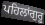
ਪਹਿਲਾਂਗੁਰੂ